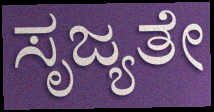
ಸೃಜ್ಯತೇ